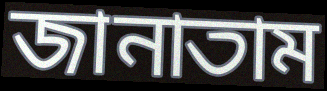
জানাতাম